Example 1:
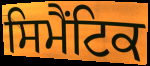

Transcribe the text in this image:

ਸਿਮੈਂਟਿਕ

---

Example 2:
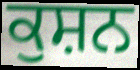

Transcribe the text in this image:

ਕੁਸ਼ਨ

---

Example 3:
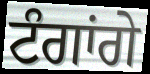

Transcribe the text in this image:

ਟੰਗਾਂਗੇ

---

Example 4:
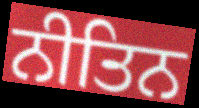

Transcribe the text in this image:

ਨੀਤਿਨ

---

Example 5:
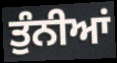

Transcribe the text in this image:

ਤੁੰਨੀਆਂ